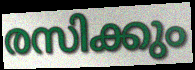
രസിക്കും